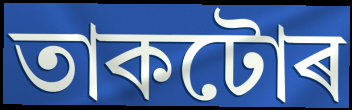
তাকটোৰ